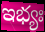
ఇభ్యః